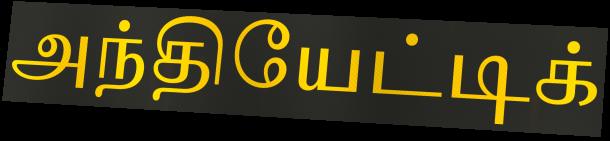
அந்தியேட்டிக்